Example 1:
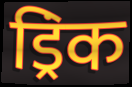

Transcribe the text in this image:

ड्रिंक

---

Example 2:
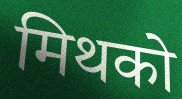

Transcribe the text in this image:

मिथको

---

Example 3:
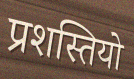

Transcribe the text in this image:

प्रशस्तियो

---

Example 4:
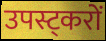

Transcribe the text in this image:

उपस्ट्करों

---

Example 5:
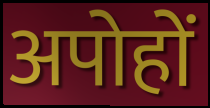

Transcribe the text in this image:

अपोहों